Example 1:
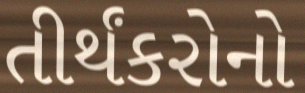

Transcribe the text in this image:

તીર્થંકરોનો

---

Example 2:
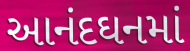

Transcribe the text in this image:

આનંદઘનમાં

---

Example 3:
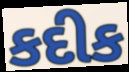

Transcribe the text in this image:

કદીક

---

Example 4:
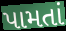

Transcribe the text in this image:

પામતાં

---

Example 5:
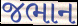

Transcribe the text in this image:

જભાન